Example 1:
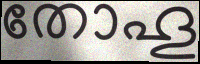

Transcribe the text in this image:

തോഹൂ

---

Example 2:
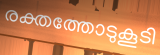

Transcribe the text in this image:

രക്തത്തോടുകൂടി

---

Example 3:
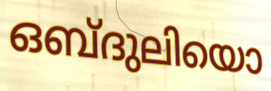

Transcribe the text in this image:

ഒബ്ദുലിയൊ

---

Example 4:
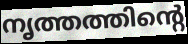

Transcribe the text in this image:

നൃത്തത്തിന്റെ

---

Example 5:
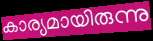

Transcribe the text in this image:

കാര്യമായിരുന്നു